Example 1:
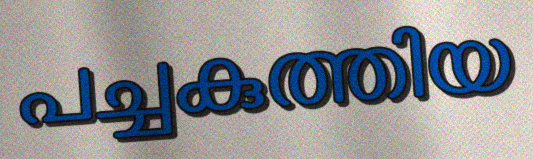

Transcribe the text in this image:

പച്ചകുത്തിയ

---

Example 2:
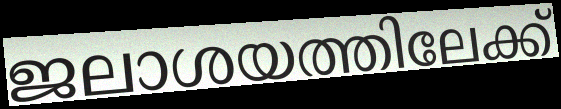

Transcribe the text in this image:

ജലാശയത്തിലേക്ക്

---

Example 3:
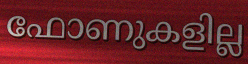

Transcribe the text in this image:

ഫോണുകളില്ല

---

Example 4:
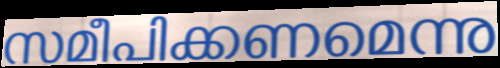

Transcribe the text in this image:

സമീപിക്കണമെന്നു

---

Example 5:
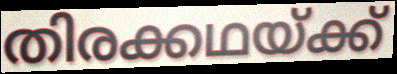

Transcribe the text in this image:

തിരക്കഥയ്ക്ക്